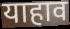
याहाव